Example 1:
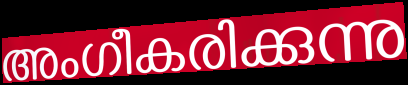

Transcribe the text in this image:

അംഗീകരിക്കുന്നു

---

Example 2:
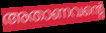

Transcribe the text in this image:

അതാണവന്റെ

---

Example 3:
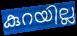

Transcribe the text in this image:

കുറയില്ല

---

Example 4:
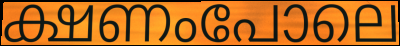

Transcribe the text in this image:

ക്ഷണംപോലെ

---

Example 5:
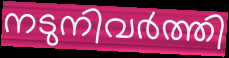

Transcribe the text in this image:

നടുനിവർത്തി